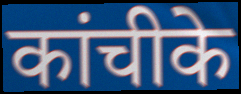
कांचीके